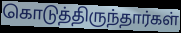
கொடுத்திருந்தார்கள்